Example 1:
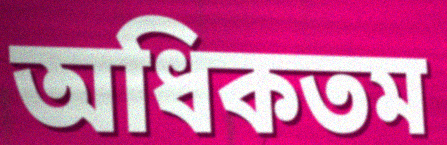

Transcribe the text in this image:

অধিকতম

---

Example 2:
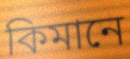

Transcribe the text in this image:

কিমানে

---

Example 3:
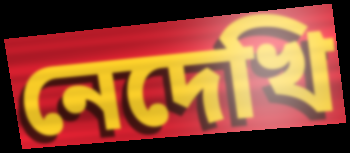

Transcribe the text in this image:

নেদেখি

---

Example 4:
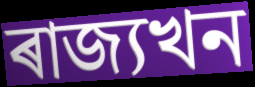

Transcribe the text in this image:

ৰাজ্যখন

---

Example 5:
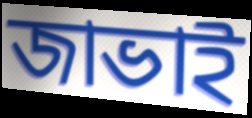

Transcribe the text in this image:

জাভাই